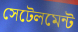
সেটেলমেন্ট